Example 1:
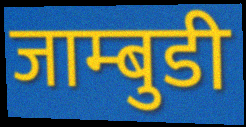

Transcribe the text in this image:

जाम्बुडी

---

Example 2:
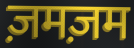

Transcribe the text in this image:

ज़मज़म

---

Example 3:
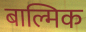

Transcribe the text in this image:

बाल्मिक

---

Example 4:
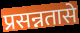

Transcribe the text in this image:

प्रसन्नतासे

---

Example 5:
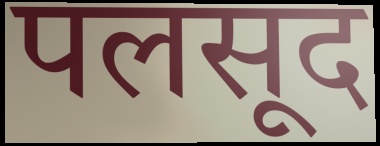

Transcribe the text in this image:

पलसूद